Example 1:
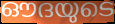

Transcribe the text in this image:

ഔദയുടെ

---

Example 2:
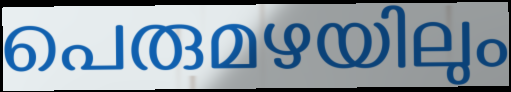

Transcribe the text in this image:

പെരുമഴയിലും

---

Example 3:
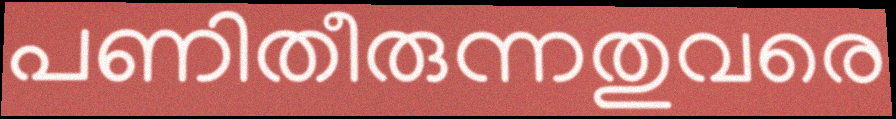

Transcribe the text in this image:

പണിതീരുന്നതുവരെ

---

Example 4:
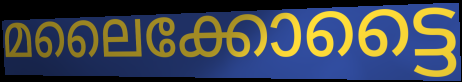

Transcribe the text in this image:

മലൈക്കോട്ടൈ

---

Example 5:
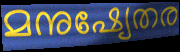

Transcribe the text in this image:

മനുഷ്യേതര